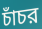
চাঁচর